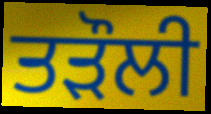
ਤੜੌਲੀ